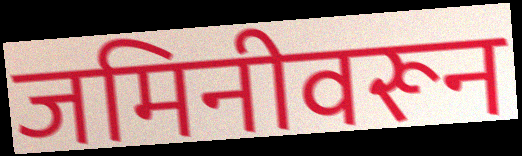
जमिनीवरून